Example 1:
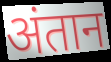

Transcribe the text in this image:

अंतान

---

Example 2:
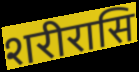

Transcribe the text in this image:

शरीरासि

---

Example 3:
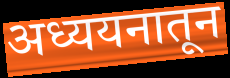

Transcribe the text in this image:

अध्ययनातून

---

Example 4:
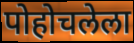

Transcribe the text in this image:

पोहोचलेला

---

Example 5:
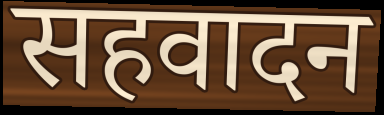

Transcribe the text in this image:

सहवादन